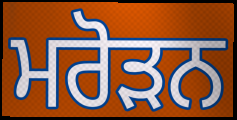
ਮਰੋੜਨ